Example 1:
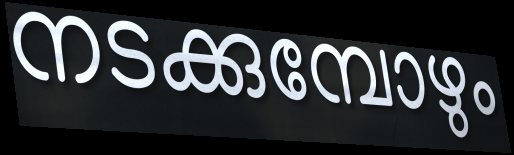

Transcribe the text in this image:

നടക്കുമ്പോഴും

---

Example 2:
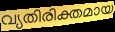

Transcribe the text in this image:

വ്യതിരിക്തമായ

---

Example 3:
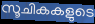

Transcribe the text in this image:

സൂചികകളുടെ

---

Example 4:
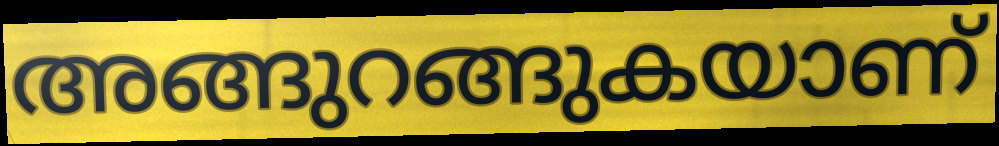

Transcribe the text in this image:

അങ്ങുറങ്ങുകയാണ്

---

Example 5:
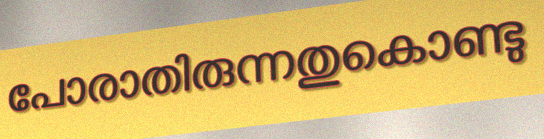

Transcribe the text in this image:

പോരാതിരുന്നതുകൊണ്ടു